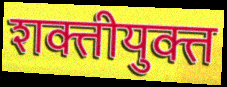
शक्तीयुक्त